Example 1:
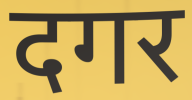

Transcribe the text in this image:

दगर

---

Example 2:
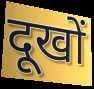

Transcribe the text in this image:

दूखों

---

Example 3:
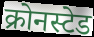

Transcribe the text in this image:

क्रोनस्टेड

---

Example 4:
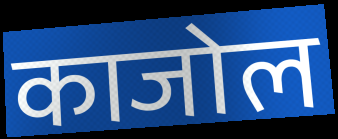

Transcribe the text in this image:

काजोल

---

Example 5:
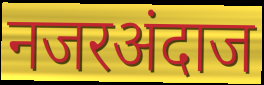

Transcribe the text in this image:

नजरअंदाज